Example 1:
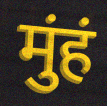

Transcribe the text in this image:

मुंहं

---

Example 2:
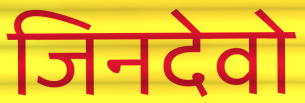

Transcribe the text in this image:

जिनदेवो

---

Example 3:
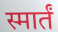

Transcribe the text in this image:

स्मार्तं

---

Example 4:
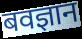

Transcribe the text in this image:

बवज्ञान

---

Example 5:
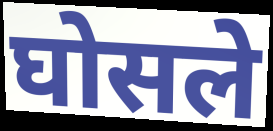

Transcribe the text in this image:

घोसले